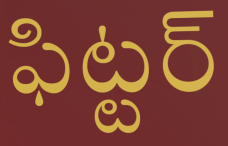
ఫిట్టర్